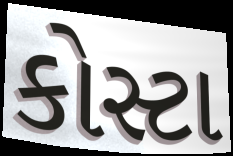
કોસ્ટા